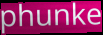
phunke